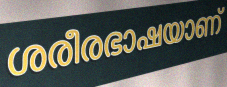
ശരീരഭാഷയാണ്